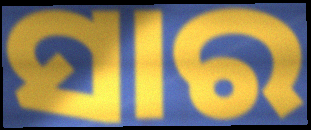
ସାର